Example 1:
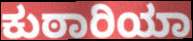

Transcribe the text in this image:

ಕುಠಾರಿಯಾ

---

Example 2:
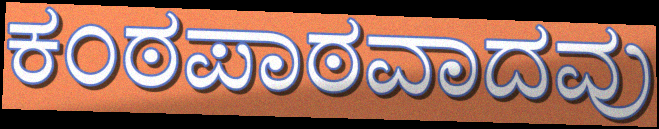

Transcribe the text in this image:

ಕಂಠಪಾಠವಾದವು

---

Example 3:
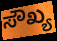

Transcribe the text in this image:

ಸೌಖ್ಯ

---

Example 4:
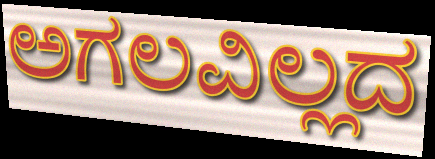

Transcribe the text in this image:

ಅಗಲವಿಲ್ಲದ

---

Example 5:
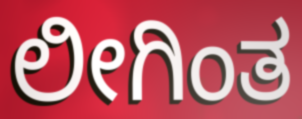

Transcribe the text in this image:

ಲೀಗಿಂತ